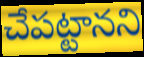
చేపట్టానని